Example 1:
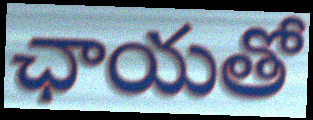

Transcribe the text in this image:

ఛాయతో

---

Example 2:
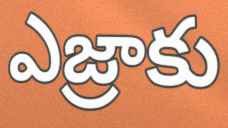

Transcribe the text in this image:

ఎజ్రాకు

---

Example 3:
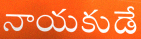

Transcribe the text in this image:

నాయకుడే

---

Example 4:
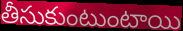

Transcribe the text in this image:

తీసుకుంటుంటాయి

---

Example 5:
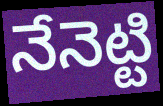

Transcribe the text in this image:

నేనెట్టి